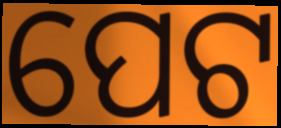
ପେଟ